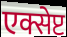
एक्सेप्ट